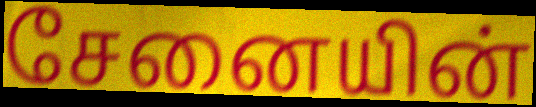
சேனையின்